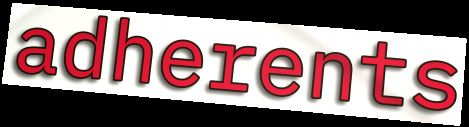
adherents